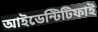
আইডেন্টিটিফাই